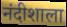
नंदीशाला